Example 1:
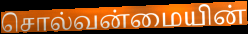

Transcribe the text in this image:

சொல்வன்மையின்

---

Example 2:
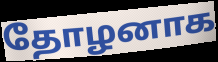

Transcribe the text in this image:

தோழனாக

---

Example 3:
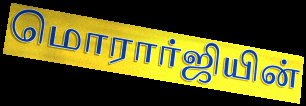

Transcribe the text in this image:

மொரார்ஜியின்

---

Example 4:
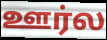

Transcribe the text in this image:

ஊர்ல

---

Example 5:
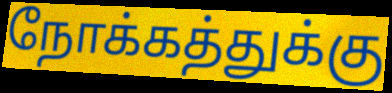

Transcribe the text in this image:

நோக்கத்துக்கு